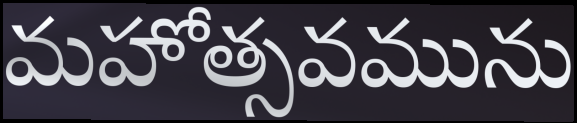
మహోత్సవమును